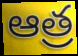
ఆత్ర